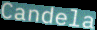
Candela